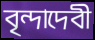
বৃন্দাদেবী